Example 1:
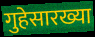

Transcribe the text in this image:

गुहेसारख्या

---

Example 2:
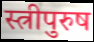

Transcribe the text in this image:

स्त्रीपुरुष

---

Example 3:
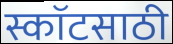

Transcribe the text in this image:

स्कॉटसाठी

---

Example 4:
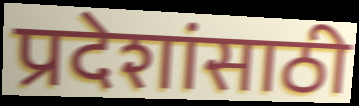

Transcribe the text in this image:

प्रदेशांसाठी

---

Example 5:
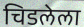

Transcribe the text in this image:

चिडलेला